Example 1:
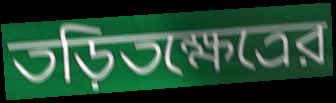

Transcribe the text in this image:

তড়িতক্ষেত্রের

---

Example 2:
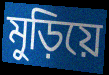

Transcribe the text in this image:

মুড়িয়ে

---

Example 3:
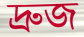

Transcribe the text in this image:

দ্রুজ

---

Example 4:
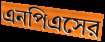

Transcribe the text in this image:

এনপিএসের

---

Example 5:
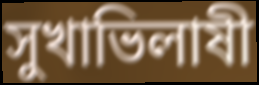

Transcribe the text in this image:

সুখাভিলাষী